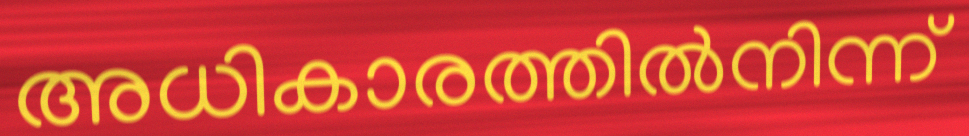
അധികാരത്തിൽനിന്ന്